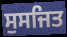
ਸੁਸਜਿਤ